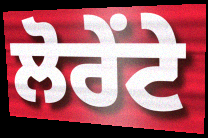
ਲੋਰੇਂਟੇ